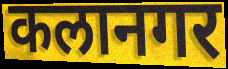
कलानगर